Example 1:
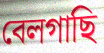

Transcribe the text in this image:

বেলগাছি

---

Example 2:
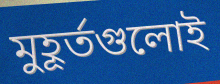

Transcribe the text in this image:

মুহূর্তগুলোই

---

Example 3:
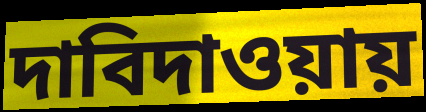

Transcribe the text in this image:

দাবিদাওয়ায়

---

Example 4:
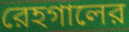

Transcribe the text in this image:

রেহগালের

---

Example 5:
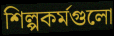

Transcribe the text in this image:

শিল্পকর্মগুলো